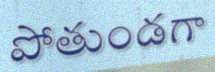
పోతుండగా